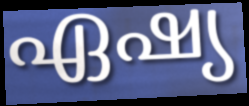
ഏഷ്യ